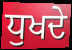
ਧੁਖਦੇ